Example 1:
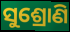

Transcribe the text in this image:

ସୁଶ୍ରୋଣି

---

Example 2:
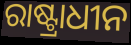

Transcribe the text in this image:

ରାଷ୍ଟ୍ରାଧୀନ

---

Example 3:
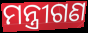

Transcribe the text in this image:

ମନ୍ତ୍ରୀଗଣ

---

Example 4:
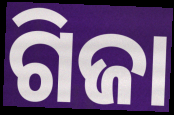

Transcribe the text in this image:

ଗିଜା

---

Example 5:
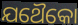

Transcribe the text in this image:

ଯଥୈକୋ